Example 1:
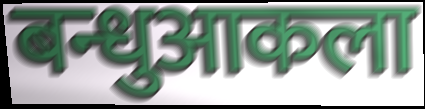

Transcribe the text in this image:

बन्धुआकला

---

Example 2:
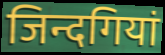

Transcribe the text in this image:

जिन्दगियां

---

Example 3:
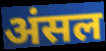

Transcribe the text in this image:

अंसल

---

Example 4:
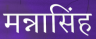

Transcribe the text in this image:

मन्नासिंह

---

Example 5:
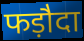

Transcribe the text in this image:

फड़ौदा